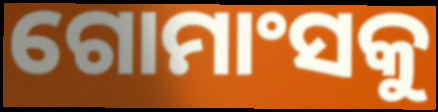
ଗୋମାଂସକୁ